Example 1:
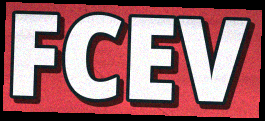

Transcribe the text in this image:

FCEV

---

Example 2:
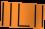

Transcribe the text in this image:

IILII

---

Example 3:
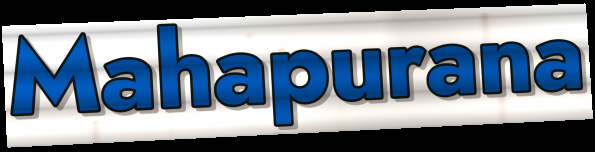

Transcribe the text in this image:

Mahapurana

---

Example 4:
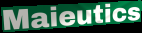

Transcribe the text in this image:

Maieutics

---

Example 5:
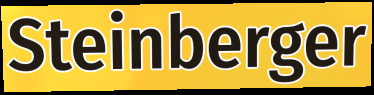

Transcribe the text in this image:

Steinberger